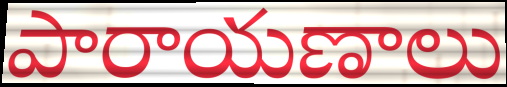
పారాయణాలు